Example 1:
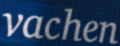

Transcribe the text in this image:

vachen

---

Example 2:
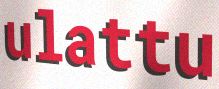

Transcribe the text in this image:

ulattu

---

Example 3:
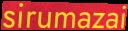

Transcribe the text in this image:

sirumazai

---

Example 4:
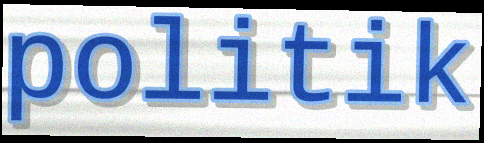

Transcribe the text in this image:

politik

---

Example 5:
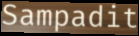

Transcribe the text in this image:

Sampadit